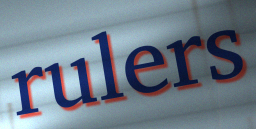
rulers